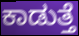
ಕಾಡುತ್ತೆ